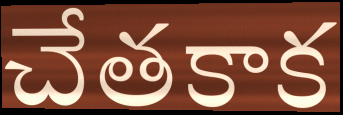
చేతకాక